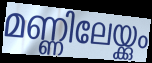
മണ്ണിലേയ്ക്കും